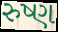
રુષ્ણ